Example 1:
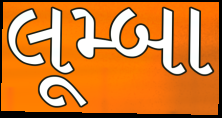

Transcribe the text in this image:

લૂમ્બા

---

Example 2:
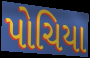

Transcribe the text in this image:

પોચિયા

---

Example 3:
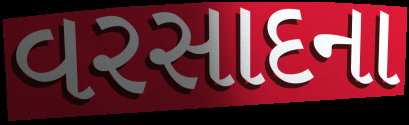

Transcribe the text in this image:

વરસાદના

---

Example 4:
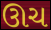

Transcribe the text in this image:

ઊચ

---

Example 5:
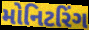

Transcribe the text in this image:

મોનિટરિંગ